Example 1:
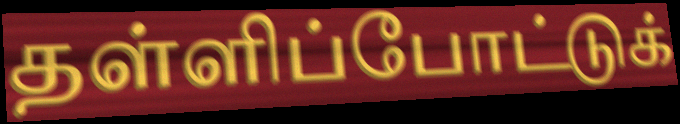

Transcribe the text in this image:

தள்ளிப்போட்டுக்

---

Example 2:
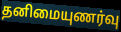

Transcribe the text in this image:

தனிமையுணர்வு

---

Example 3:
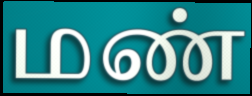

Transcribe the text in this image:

மண்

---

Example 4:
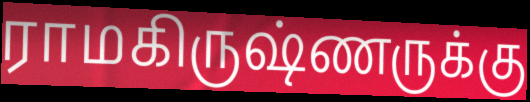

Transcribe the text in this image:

ராமகிருஷ்ணருக்கு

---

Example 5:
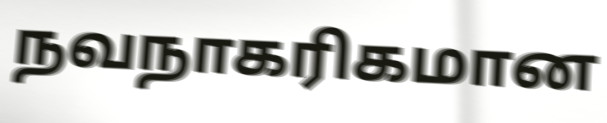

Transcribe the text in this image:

நவநாகரிகமான